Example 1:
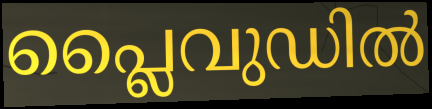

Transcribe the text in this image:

പ്ലൈവുഡിൽ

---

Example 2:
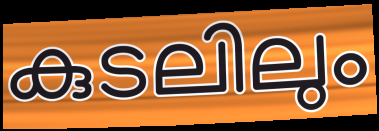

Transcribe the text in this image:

കുടലിലും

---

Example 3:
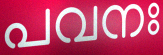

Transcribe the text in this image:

പവനഃ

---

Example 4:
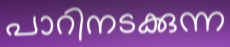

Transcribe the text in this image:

പാറിനടക്കുന്ന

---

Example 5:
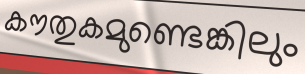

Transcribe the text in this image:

കൗതുകമുണ്ടെങ്കിലും